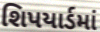
શિપયાર્ડમાં